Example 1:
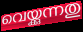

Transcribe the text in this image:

വെയ്ക്കുന്നതു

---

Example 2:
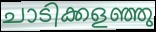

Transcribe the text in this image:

ചാടിക്കളഞ്ഞു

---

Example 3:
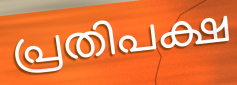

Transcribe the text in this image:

പ്രതിപക്ഷ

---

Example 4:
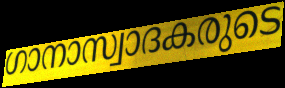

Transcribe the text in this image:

ഗാനാസ്വാദകരുടെ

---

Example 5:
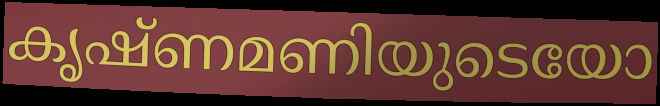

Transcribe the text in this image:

കൃഷ്ണമണിയുടെയോ